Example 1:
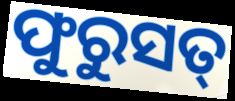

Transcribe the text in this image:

ଫୁରୁସତ୍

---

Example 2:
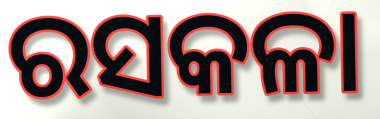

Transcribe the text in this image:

ରସକଳା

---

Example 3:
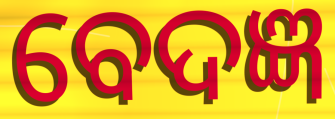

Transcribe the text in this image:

ବେଦଜ୍ଞ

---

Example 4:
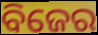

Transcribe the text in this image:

ବିଜେର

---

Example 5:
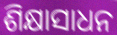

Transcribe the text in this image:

ଶିକ୍ଷାସାଧନ